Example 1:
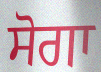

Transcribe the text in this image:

ਸੋਗਾ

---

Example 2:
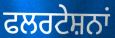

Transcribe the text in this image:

ਫਲਰਟੇਸ਼ਨਾਂ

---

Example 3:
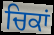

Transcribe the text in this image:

ਚਿਕਾਂ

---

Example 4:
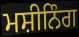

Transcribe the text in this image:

ਮਸ਼ੀਨਿੰਗ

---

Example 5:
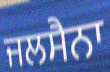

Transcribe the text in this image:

ਜਲਸੈਨਾ